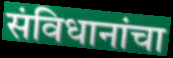
संविधानांचा